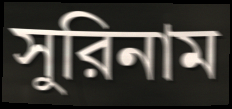
সুরিনাম